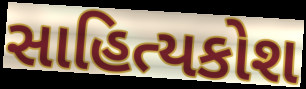
સાહિત્યકોશ